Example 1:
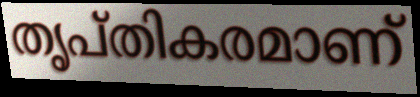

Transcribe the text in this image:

തൃപ്തികരമാണ്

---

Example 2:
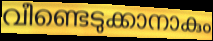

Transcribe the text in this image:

വീണ്ടെടുക്കാനാകും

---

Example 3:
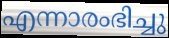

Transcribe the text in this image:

എന്നാരംഭിച്ചു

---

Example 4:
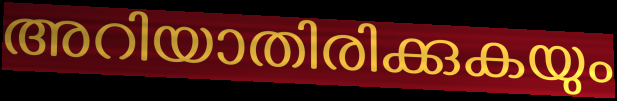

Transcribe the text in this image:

അറിയാതിരിക്കുകയും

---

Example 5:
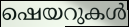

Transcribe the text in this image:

ഷെയറുകൾ